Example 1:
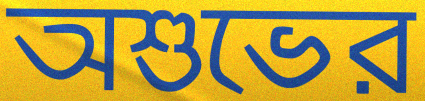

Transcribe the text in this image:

অশুভের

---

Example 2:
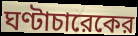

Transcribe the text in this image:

ঘণ্টাচারেকের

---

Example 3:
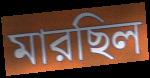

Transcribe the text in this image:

মারছিল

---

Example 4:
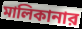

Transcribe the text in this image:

মালিকানার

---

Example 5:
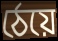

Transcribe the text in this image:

ঠেয়ে